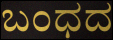
ಬಂಧದ